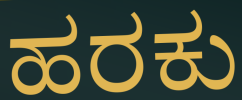
ಹರಕು